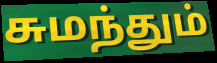
சுமந்தும்